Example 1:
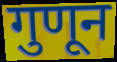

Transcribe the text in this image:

गुणून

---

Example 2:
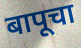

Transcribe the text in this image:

बापूचा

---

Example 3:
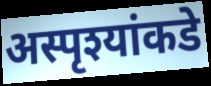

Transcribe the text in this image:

अस्पृश्यांकडे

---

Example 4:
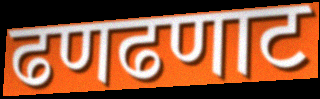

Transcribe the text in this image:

ढणढणाट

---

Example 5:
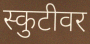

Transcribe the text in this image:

स्कुटीवर